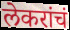
लेकरांचं